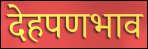
देहपणभाव